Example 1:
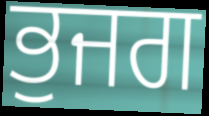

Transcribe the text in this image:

ਭੁਜਗ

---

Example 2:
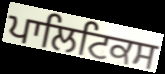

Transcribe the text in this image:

ਪਾਲਿਟਿਕਸ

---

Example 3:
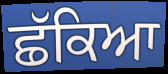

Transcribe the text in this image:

ਛੱਕਿਆ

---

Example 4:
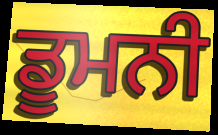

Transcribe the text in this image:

ਡੂਮਨੀ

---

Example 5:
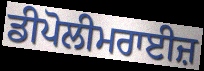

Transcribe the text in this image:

ਡੀਪੋਲੀਮਰਾਈਜ਼